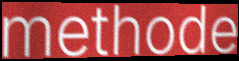
methode